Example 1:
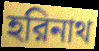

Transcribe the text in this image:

হরিনাথ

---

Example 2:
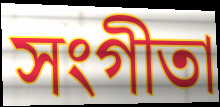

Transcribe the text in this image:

সংগীতা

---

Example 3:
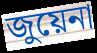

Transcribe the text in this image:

জুয়েনা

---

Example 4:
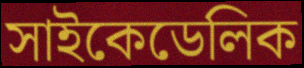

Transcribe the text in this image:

সাইকেডেলিক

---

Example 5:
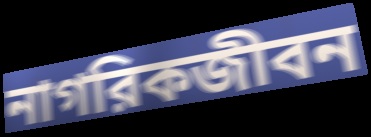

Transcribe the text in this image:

নাগরিকজীবন